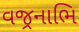
વજ્રનાભિ